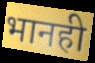
भानही